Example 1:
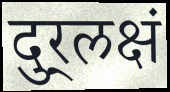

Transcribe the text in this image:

दुर्लक्षं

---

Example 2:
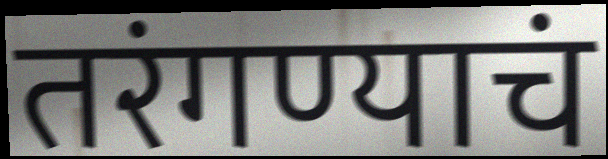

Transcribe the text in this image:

तरंगण्याचं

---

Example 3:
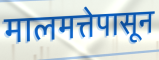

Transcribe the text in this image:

मालमत्तेपासून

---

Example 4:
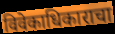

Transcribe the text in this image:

विवेकाधिकाराचा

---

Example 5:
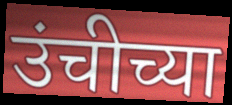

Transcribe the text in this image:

उंचीच्या